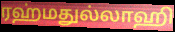
ரஹ்மதுல்லாஹி